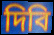
দিবি